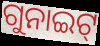
ଗୁନାଇଟ୍